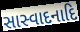
સાસ્વાદનાદિ